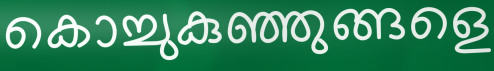
കൊച്ചുകുഞ്ഞുങ്ങളെ